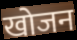
खोजन